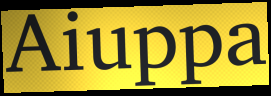
Aiuppa